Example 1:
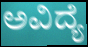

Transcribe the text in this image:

ಅವಿದ್ಯೆ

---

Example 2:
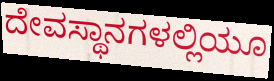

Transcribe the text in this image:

ದೇವಸ್ಥಾನಗಳಲ್ಲಿಯೂ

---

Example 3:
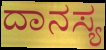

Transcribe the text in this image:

ದಾನಸ್ಯ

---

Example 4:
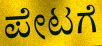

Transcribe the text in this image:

ಪೇಟಗೆ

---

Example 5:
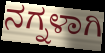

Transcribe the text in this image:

ನಗ್ನಳಾಗಿ